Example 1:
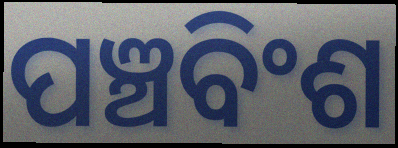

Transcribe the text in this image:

ପଞ୍ଚବିଂଶ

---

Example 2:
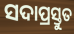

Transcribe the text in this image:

ସଦାପ୍ରସ୍ତୁତ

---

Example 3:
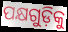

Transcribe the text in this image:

ପକ୍ଷଗୁଡ଼ିକୁ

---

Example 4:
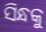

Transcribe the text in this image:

ସିନ୍ଧକୁ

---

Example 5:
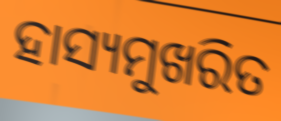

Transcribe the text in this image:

ହାସ୍ୟମୁଖରିତ